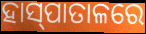
ହାସ୍‌ପାତାଳରେ